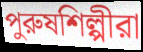
পুরুষশিল্পীরা